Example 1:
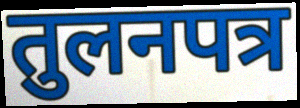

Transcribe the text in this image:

तुलनपत्र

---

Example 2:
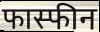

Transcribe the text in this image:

फास्फीन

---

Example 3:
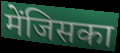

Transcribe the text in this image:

मेंजिसका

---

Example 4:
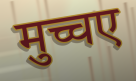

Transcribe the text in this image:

मुच्चए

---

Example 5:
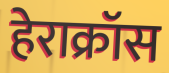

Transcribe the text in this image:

हेराक्रॉस